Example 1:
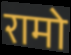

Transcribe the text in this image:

रामो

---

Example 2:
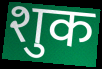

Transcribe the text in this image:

शुक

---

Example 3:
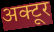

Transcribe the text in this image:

अक्टूर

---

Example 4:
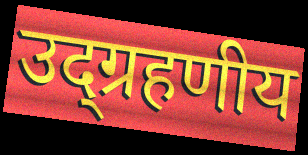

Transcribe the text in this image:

उद्ग्रहणीय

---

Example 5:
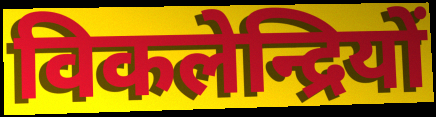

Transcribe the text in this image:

विकलेन्द्रियों